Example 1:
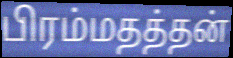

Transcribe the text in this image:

பிரம்மதத்தன்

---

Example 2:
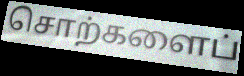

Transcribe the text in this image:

சொற்களைப்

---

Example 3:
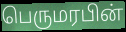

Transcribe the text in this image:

பெருமரபின்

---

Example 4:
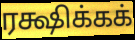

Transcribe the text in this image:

ரக்ஷிக்கக்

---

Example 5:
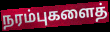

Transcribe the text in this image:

நரம்புகளைத்